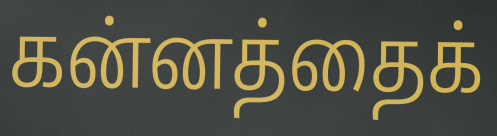
கன்னத்தைக்